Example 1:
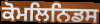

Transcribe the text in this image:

ਕੋਮਲਿਨਿਡਸ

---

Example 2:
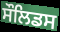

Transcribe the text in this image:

ਸੌਲਿਡਸ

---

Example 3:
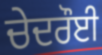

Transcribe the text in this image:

ਚੇਦਰੌਈ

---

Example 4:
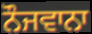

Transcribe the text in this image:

ਨੌਜਵਾਨਾ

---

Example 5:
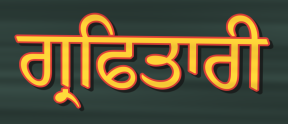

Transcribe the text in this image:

ਗ੍ਰਫਿਤਾਰੀ